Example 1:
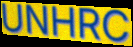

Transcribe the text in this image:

UNHRC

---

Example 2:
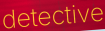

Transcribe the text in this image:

detective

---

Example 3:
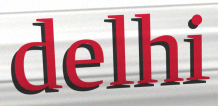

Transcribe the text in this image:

delhi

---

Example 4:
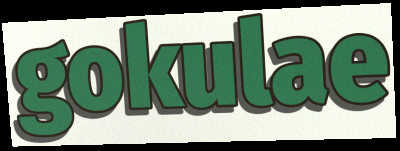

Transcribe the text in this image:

gokulae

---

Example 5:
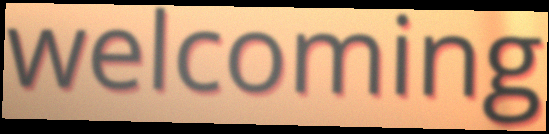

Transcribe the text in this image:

welcoming